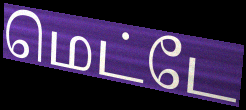
மெட்டே